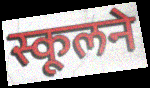
स्कूलने